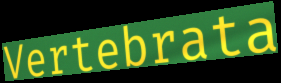
Vertebrata